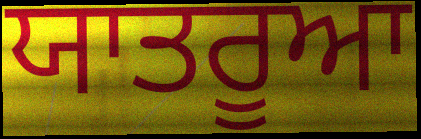
ਯਾਤਰੂਆ